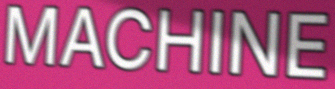
MACHINE